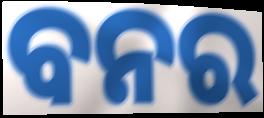
ବନର